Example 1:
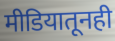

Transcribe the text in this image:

मीडियातूनही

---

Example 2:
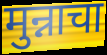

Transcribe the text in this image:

मुन्नाचा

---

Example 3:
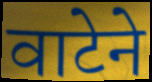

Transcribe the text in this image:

वाटेने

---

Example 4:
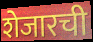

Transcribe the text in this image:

शेजारची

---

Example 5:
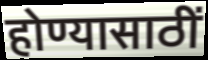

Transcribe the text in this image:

होण्यासाठीं